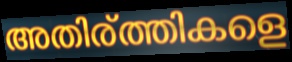
അതിര്ത്തികളെ